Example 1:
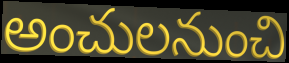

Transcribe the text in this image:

అంచులనుంచి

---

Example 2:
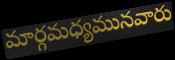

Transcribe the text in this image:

మార్గమధ్యమునవారు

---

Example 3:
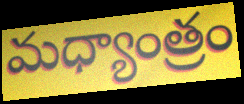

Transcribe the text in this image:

మధ్యాంత్రం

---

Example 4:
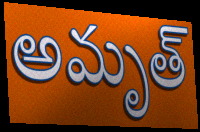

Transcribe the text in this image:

అమృత్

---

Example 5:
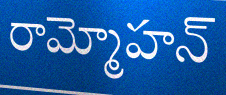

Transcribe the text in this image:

రామ్మోహన్